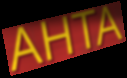
AHTA